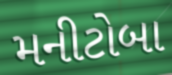
મનીટોબા